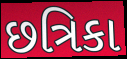
છત્રિકા